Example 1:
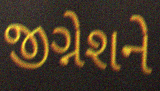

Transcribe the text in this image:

જીગ્નેશને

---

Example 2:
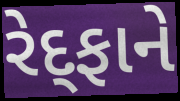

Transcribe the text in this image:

રેદ્ફાને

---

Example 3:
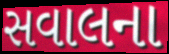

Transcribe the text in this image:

સવાલના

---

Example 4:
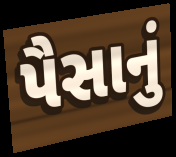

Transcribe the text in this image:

પૈસાનું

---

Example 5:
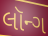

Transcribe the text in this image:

લૉન્ગ